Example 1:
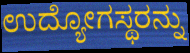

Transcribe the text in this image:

ಉದ್ಯೋಗಸ್ಥರನ್ನು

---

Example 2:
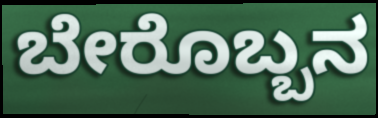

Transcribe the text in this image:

ಬೇರೊಬ್ಬನ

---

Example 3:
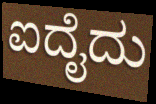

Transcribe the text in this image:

ಐದೈದು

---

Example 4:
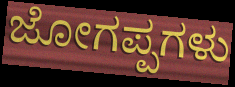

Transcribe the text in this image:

ಜೋಗಪ್ಪಗಳು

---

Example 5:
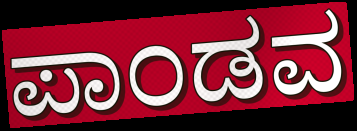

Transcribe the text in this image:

ಪಾಂಡವ